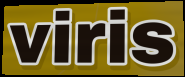
viris